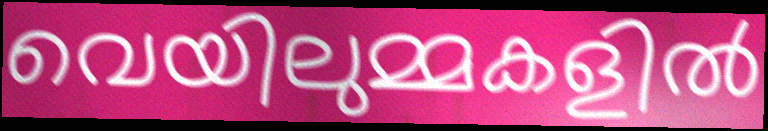
വെയിലുമ്മകളിൽ